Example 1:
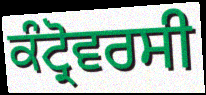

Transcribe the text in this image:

ਕੰਟ੍ਰੋਵਰਸੀ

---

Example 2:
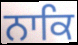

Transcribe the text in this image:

ਨਾਕਿ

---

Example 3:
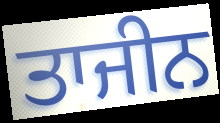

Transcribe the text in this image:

ਤਾਜੀਨ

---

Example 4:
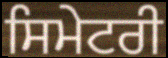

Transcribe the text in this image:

ਸਿਮੇਟਰੀ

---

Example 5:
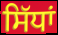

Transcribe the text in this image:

ਸਿੱਧਾਂ